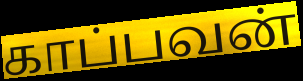
காப்பவன்